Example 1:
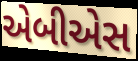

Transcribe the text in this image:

એબીએસ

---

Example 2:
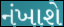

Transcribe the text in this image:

નંખાશે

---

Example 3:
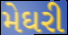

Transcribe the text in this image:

મેઘરી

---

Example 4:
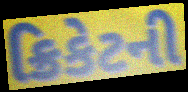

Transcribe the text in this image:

ક્રિકેટની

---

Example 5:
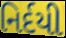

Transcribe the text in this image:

નિર્દયી